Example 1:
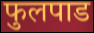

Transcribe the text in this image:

फुलपाड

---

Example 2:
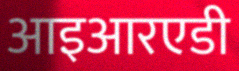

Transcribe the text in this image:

आइआरएडी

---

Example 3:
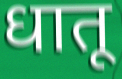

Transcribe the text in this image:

धातू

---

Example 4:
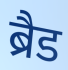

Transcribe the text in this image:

ब्रैड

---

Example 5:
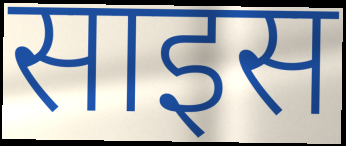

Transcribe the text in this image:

साइस